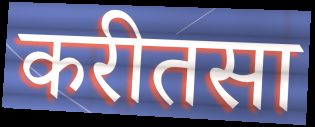
करीतसा